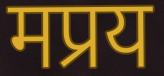
मप्रय